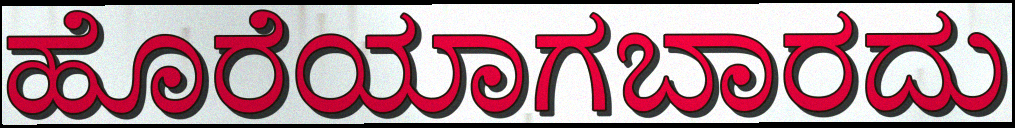
ಹೊರೆಯಾಗಬಾರದು